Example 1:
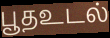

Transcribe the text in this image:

பூதஉடல்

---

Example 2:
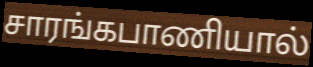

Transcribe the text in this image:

சாரங்கபாணியால்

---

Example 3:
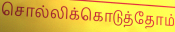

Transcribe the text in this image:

சொல்லிக்கொடுத்தோம்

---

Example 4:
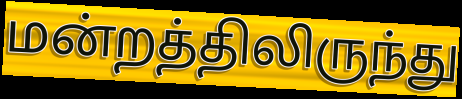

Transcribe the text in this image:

மன்றத்திலிருந்து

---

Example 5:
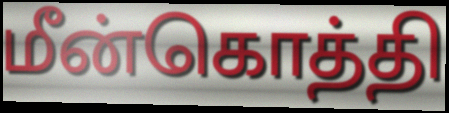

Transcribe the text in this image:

மீன்கொத்தி